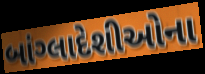
બાંગ્લાદેશીઓના